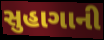
સુહાગાની